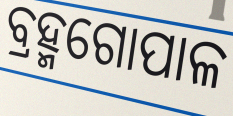
ବ୍ରହ୍ମଗୋପାଳ